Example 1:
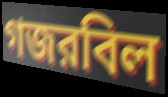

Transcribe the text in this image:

গজরবিল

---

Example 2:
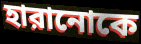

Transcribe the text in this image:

হারানোকে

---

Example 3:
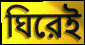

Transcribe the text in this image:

ঘিরেই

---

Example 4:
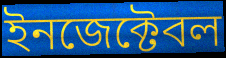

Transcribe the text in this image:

ইনজেক্টেবল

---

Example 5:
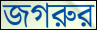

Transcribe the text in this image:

জগরুর